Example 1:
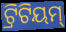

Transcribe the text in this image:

ଟ୍ରିଟିୟମ୍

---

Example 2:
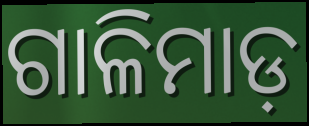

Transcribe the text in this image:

ଗାଳିମାଡ଼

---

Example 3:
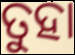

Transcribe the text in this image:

ତୁହା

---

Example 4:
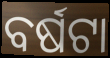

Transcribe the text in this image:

ବର୍ଷଟା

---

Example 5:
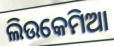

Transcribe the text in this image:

ଲିଉକେମିଆ